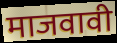
माजवावी